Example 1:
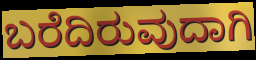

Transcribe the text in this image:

ಬರೆದಿರುವುದಾಗಿ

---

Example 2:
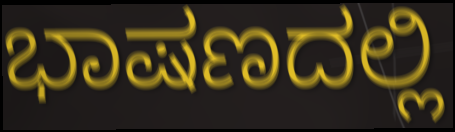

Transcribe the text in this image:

ಭಾಷಣದಲ್ಲಿ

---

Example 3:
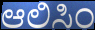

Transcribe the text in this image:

ಆಲಿಸಿಂ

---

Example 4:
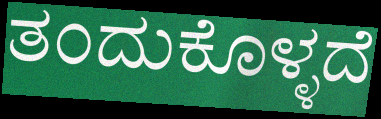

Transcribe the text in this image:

ತಂದುಕೊಳ್ಳದೆ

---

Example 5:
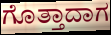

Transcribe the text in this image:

ಗೊತ್ತಾದಾಗ